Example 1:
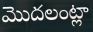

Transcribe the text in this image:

మొదలంట్లా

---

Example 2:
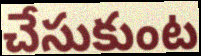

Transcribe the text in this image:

చేసుకుంట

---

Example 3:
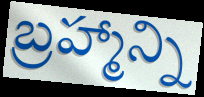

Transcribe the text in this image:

బ్రహ్మాన్ని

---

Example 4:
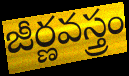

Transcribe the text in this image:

జీర్ణవస్త్రం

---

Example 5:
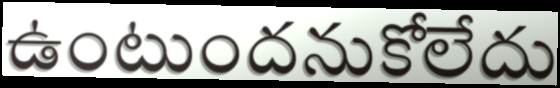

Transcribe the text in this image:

ఉంటుందనుకోలేదు